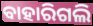
ବାହାରିଗଲି